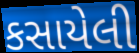
કસાયેલી